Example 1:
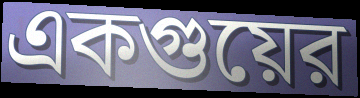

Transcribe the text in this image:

একগুয়ের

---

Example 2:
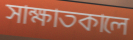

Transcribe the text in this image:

সাক্ষাতকালে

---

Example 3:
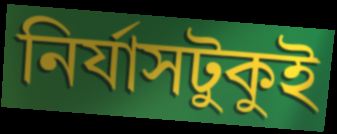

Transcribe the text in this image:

নির্যাসটুকুই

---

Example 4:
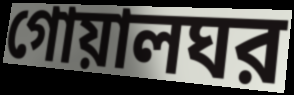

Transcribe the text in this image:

গোয়ালঘর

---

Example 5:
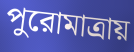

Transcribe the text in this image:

পুরোমাত্রায়